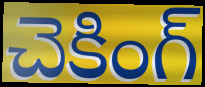
చెకింగ్